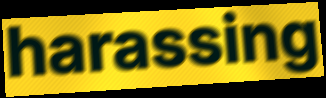
harassing